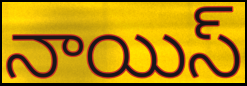
నాయిస్